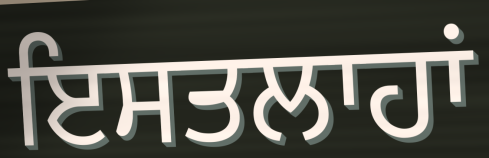
ਇਸਤਲਾਹਾਂ